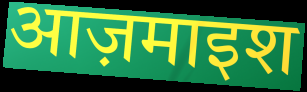
आज़माइश